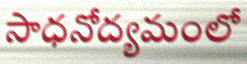
సాధనోద్యమంలో